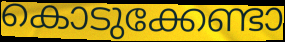
കൊടുക്കേണ്ടാ